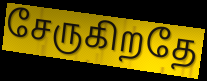
சேருகிறதே